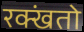
रक्खंतो